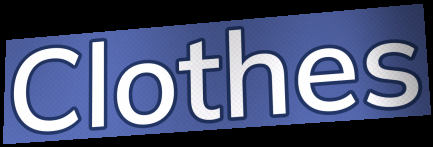
Clothes